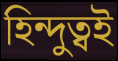
হিন্দুত্বই